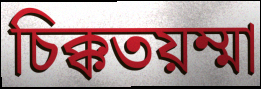
চিক্কতয়ম্মা